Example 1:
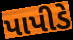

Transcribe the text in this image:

પાપીડે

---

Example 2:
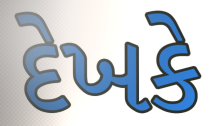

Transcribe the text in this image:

દેખકે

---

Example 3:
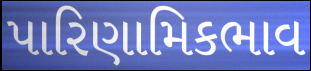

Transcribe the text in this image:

પારિણામિકભાવ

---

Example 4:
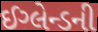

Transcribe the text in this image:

ઈગ્લેન્ડની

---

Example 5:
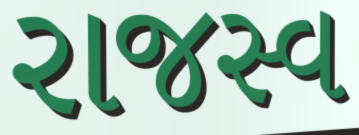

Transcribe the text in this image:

રાજસ્વ